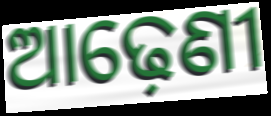
ଆଢ଼େଣୀ